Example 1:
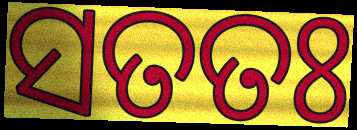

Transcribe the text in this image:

ସତତଃ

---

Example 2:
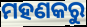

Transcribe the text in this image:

ମହଣକରୁ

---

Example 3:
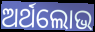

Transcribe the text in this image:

ଅର୍ଥଲୋଭ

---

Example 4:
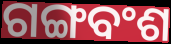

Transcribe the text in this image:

ଗଙ୍ଗବଂଶ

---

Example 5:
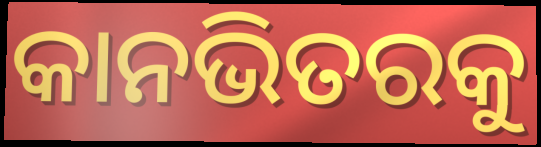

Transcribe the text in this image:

କାନଭିତରକୁ